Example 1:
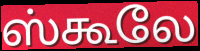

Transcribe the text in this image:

ஸ்கூலே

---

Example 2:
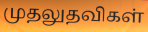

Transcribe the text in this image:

முதலுதவிகள்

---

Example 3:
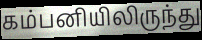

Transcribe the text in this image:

கம்பனியிலிருந்து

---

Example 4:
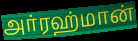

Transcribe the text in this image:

அர்ரஹ்மான்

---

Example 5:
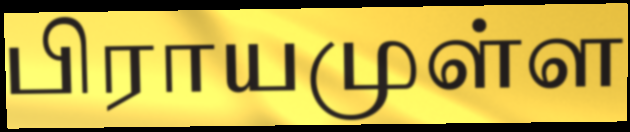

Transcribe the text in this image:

பிராயமுள்ள